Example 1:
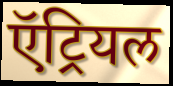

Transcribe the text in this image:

ऍट्रियल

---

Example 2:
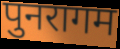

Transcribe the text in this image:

पुनरागम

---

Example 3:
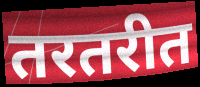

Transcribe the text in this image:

तरतरीत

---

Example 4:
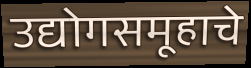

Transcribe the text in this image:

उद्योगसमूहाचे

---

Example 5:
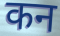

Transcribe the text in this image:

कन